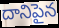
దానిపైన